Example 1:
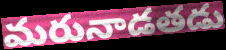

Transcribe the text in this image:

మరునాడతడు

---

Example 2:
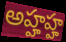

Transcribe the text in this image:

అహ్హహ్హ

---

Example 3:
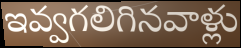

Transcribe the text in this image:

ఇవ్వగలిగినవాళ్లు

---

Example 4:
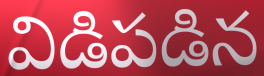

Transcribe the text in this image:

విడిపడిన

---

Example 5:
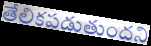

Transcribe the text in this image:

తేలికపడుతుందని